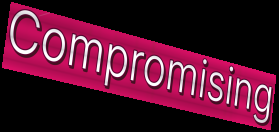
Compromising